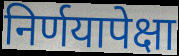
निर्णयापेक्षा